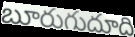
బూరుగుదూది